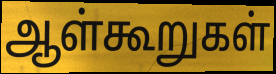
ஆள்கூறுகள்